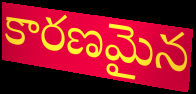
కారణమైన